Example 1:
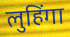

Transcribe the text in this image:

लुहिंगा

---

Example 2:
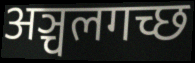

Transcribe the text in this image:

अञ्चलगच्छ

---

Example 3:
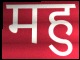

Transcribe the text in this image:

महु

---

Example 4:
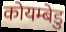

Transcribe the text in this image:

कोयम्बेडु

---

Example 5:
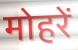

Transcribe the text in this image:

मोहरें